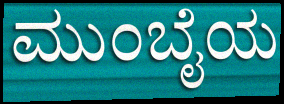
ಮುಂಬೈಯ